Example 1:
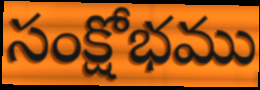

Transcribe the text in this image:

సంక్షోభము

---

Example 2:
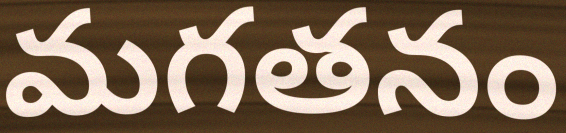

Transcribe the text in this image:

మగతనం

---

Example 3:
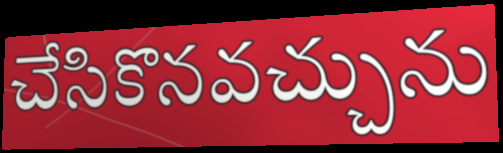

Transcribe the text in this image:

చేసికొనవచ్చును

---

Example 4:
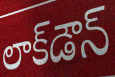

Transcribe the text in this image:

లాక్‌డౌన్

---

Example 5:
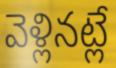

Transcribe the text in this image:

వెళ్లినట్లే